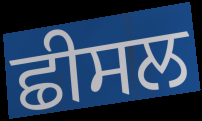
ਛੀਸਲ